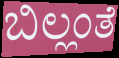
ಬಿಲ್ಲಂತೆ